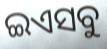
ଇଏସବୁ